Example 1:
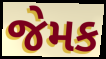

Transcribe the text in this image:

જેમક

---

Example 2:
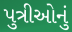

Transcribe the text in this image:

પુત્રીઓનું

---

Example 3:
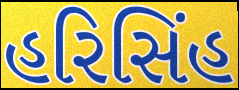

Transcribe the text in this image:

હરિસિંહ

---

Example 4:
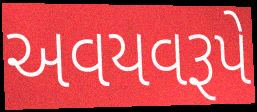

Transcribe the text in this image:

અવયવરૂપે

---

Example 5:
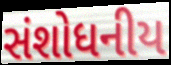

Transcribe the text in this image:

સંશોધનીય